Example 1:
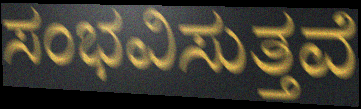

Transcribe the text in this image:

ಸಂಭವಿಸುತ್ತವೆ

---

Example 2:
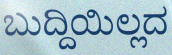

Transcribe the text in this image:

ಬುದ್ದಿಯಿಲ್ಲದ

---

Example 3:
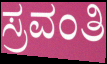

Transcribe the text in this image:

ಸ್ರವಂತಿ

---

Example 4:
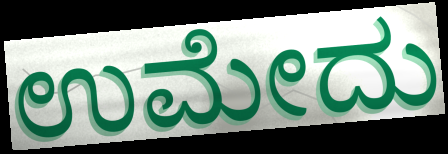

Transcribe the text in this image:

ಉಮೇದು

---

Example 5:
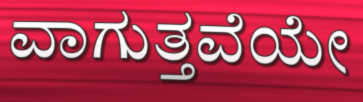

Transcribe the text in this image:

ವಾಗುತ್ತವೆಯೇ